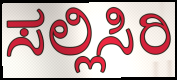
ಸಲ್ಲಿಸಿರಿ